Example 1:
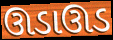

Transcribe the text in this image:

ઊડાઊડ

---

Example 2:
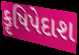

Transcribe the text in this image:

કૃષિપેદાશ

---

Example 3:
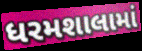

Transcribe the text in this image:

ધરમશાલામાં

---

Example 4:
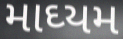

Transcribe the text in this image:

માઘ્યમ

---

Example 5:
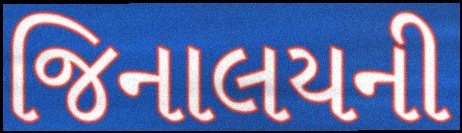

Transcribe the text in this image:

જિનાલયની